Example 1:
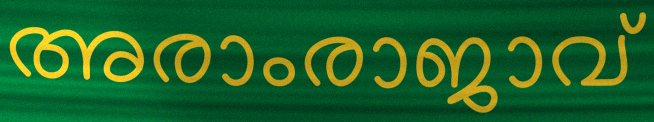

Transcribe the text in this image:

അരാംരാജാവ്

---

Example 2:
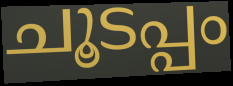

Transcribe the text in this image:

ചൂടപ്പം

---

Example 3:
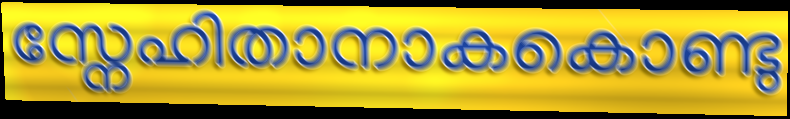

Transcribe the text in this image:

സ്നേഹിതാനാകകൊണ്ടു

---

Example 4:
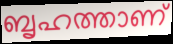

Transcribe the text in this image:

ബൃഹത്താണ്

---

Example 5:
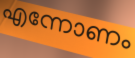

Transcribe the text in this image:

എന്നോണം